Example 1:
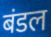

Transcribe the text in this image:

बंडल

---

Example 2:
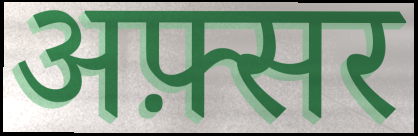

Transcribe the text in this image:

अफ़्सर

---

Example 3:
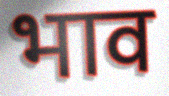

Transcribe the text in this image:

भाव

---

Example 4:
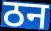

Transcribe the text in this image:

ठन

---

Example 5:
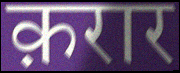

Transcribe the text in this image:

क़रार